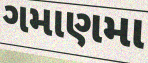
ગમાણમા